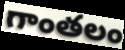
గాంతలం